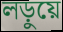
লড়ুয়ে